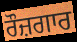
ਰੌਜ਼ਗਾਰ